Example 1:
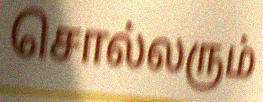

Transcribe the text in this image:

சொல்லரும்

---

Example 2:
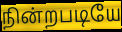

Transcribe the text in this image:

நின்றபடியே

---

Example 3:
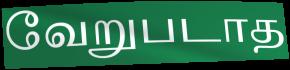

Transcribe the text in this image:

வேறுபடாத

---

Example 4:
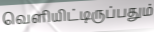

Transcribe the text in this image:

வெளியிட்டிருப்பதும்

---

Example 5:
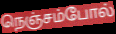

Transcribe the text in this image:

நெஞ்சம்போல்